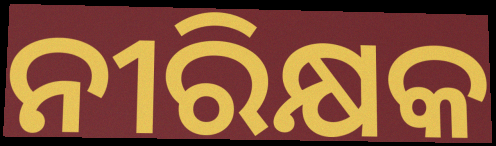
ନୀରିକ୍ଷକ